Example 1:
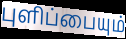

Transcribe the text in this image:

புளிப்பையும்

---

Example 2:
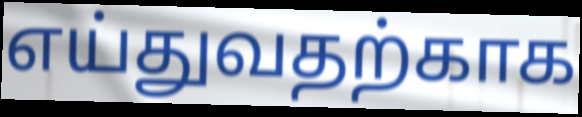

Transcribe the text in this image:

எய்துவதற்காக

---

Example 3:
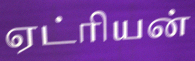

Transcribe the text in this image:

ஏட்ரியன்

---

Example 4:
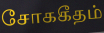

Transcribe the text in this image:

சோககீதம்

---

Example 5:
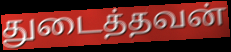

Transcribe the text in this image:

துடைத்தவன்